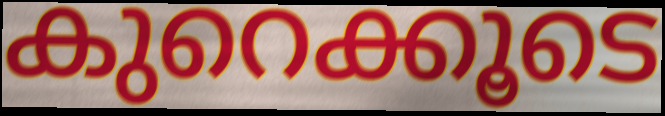
കുറെക്കൂടെ